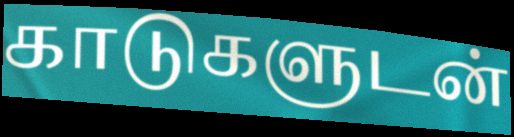
காடுகளுடன்